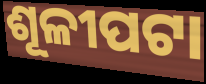
ଶୂଳୀପଟା